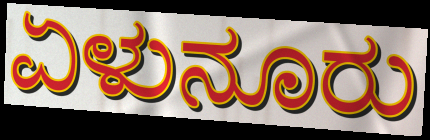
ಏಳುನೂರು